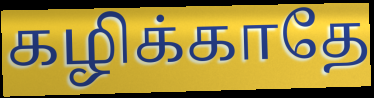
கழிக்காதே